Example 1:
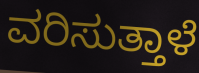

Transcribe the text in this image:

ವರಿಸುತ್ತಾಳೆ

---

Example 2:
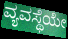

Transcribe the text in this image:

ವ್ಯವಸ್ಥೆಯೇ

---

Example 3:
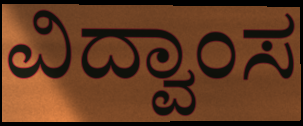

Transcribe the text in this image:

ವಿದ್ವಾಂಸ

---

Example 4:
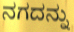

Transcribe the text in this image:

ನಗದನ್ನು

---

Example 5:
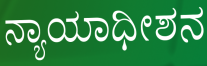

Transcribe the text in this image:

ನ್ಯಾಯಾಧೀಶನ